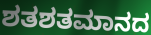
ಶತಶತಮಾನದ